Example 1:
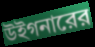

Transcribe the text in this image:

উইগনারের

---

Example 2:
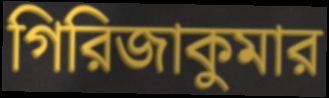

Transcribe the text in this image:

গিরিজাকুমার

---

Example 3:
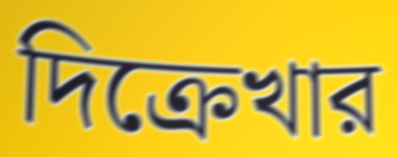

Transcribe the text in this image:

দিক্রেখার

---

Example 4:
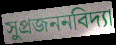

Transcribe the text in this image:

সুপ্রজননবিদ্যা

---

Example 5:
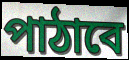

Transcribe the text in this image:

পাঠাবে